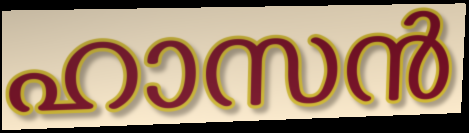
ഹാസൻ